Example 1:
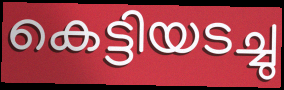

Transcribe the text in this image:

കെട്ടിയടച്ചു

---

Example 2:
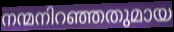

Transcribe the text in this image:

നന്മനിറഞ്ഞതുമായ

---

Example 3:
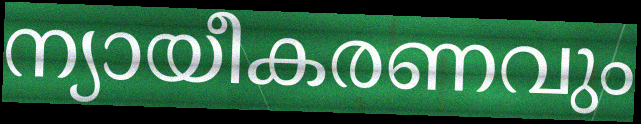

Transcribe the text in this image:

ന്യായീകരണവും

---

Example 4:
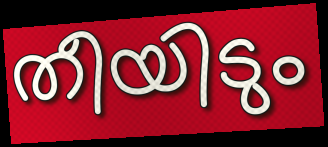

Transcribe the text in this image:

തീയിടും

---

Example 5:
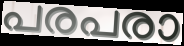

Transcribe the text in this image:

പരപരാ